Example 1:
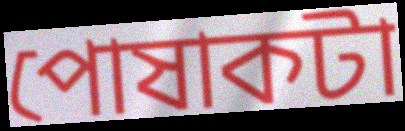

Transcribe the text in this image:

পোষাকটা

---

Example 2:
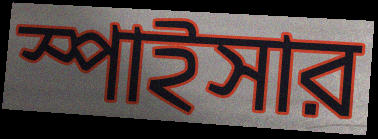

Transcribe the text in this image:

স্পাইসার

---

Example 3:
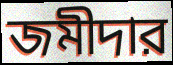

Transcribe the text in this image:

জমীদার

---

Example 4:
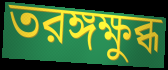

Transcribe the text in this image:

তরঙ্গক্ষুব্ধ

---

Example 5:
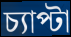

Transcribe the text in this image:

চ্যাপ্টা